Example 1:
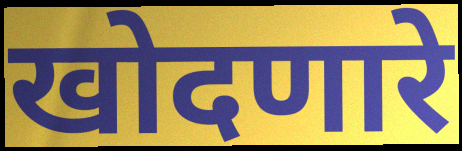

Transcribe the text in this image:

खोदणारे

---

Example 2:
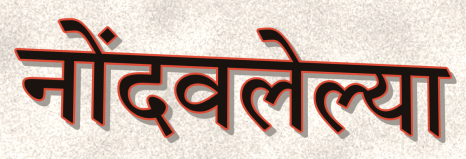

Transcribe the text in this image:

नोंदवलेल्या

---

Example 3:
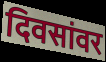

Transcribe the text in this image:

दिवसांवर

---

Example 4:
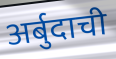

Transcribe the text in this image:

अर्बुदाची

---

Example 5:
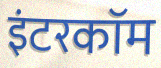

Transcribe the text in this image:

इंटरकॉम